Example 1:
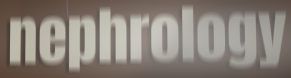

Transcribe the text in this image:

nephrology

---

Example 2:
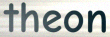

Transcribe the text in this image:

theon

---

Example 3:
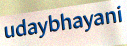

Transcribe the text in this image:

udaybhayani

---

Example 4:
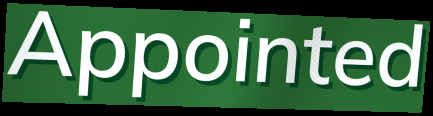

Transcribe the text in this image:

Appointed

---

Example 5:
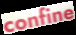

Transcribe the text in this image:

confine